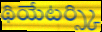
థియేటర్స్కి